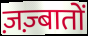
ज़ज़्बातों